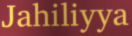
Jahiliyya